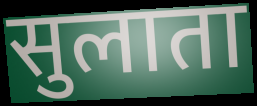
सुलाता